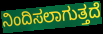
ನಿಂದಿಸಲಾಗುತ್ತದೆ